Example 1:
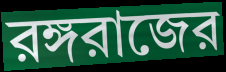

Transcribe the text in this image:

রঙ্গরাজের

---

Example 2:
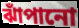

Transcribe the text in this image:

ঝাঁপানো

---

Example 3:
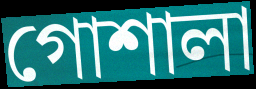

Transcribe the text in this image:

গোশালা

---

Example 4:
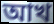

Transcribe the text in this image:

আখ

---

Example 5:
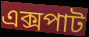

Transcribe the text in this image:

এক্সপাট